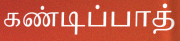
கண்டிப்பாத்